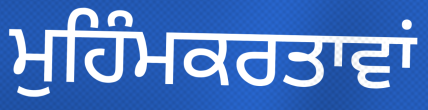
ਮੁਹਿੰਮਕਰਤਾਵਾਂ